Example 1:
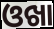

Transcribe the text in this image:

ଓଖା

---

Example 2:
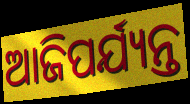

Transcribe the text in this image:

ଆଜିପର୍ଯ୍ୟନ୍ତ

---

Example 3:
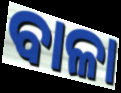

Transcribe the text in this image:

ବାଳା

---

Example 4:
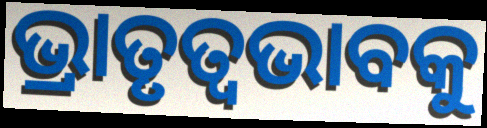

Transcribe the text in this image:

ଭ୍ରାତୃତ୍ୱଭାବକୁ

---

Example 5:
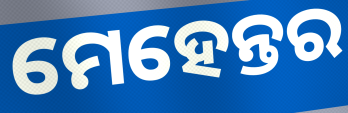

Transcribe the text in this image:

ମେହେନ୍ତର